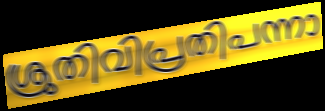
ശ്രുതിവിപ്രതിപന്നാ